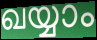
ഖയ്യാം